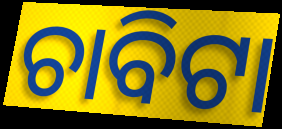
ଚାବିଟା